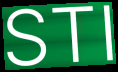
STI